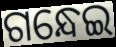
ଗନ୍ଧେଇ